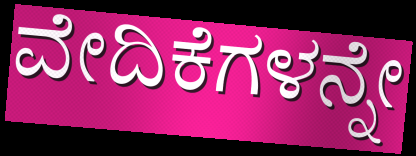
ವೇದಿಕೆಗಳನ್ನೇ